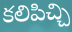
కలిపిచ్చి